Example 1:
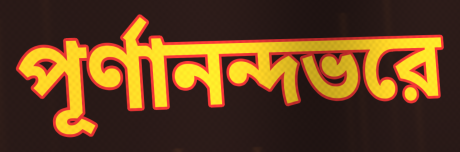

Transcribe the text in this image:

পূর্ণানন্দভরে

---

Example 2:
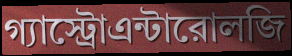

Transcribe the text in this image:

গ্যাস্ট্রোএন্টারোলজি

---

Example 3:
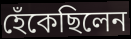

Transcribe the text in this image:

হেঁকেছিলেন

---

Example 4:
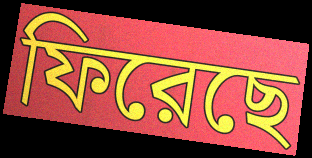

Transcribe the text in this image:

ফিরেছে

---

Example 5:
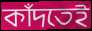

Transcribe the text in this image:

কাঁদতেই